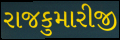
રાજકુમારીજી